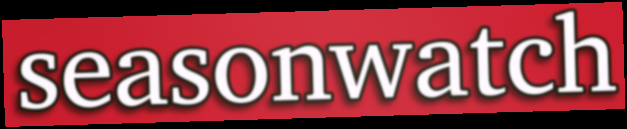
seasonwatch